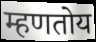
म्हणतोय